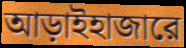
আড়াইহাজারে